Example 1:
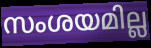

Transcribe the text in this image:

സംശയമില്ല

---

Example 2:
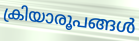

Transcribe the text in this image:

ക്രിയാരൂപങ്ങൾ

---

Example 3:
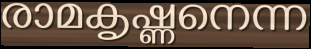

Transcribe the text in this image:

രാമകൃഷ്ണനെന്ന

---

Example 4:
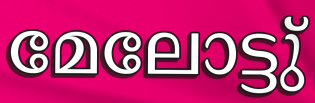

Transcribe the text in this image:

മേലോട്ടു്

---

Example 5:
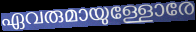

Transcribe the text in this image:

ഏവരുമായുള്ളോരേ